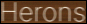
Herons